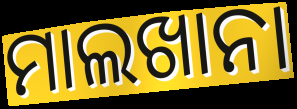
ମାଲଖାନା